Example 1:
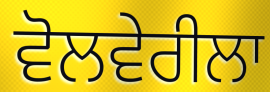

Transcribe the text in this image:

ਵੋਲਵੇਰੀਲਾ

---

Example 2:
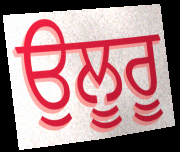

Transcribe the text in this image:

ਉਲੂਰੂ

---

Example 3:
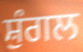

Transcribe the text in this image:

ਸ਼ੁੰਗਲ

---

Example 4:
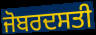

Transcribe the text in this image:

ਜੋਬਰਦਸਤੀ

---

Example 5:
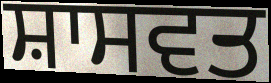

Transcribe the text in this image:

ਸ਼ਾਸਵਤ